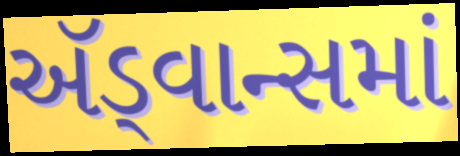
ઍડ્વાન્સમાં